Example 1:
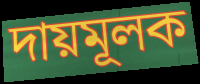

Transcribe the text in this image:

দায়মূলক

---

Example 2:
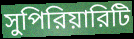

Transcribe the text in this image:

সুপিরিয়ারিটি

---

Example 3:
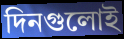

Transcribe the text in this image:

দিনগুলোই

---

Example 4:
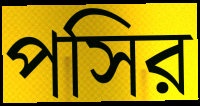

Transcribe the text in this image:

পসির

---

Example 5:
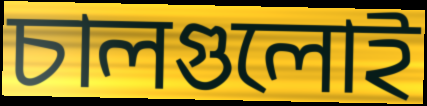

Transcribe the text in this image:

চালগুলোই